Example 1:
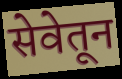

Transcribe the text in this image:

सेवेतून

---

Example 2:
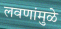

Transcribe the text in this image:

लवणांमुळे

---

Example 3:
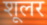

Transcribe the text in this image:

शूलर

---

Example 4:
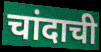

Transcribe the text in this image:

चांदाची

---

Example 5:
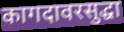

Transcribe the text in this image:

कागदावरसुद्धा